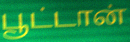
பூட்டான்